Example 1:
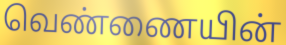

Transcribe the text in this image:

வெண்ணையின்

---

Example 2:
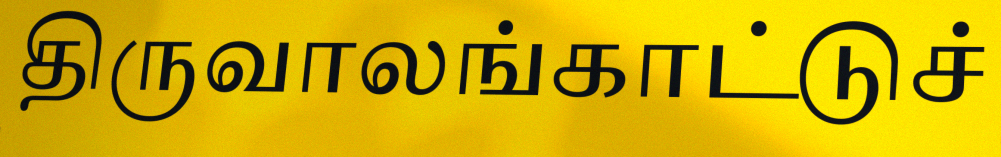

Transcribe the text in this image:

திருவாலங்காட்டுச்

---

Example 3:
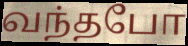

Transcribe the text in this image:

வந்தபோ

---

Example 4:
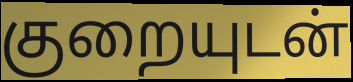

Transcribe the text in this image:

குறையுடன்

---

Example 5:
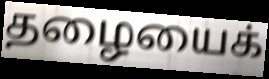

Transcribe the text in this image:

தழையைக்